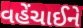
વહેંચાઈને